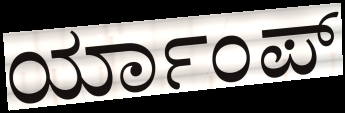
ರ್ಯಾಂಪ್